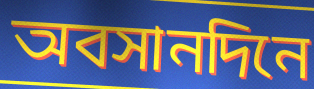
অবসানদিনে